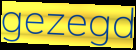
gezegd